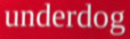
underdog